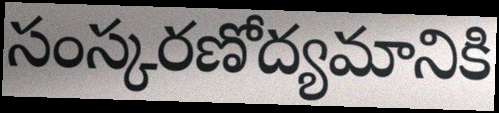
సంస్కరణోద్యమానికి